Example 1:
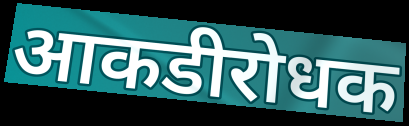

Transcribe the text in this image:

आकडीरोधक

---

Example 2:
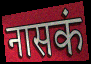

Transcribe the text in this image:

नासकं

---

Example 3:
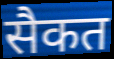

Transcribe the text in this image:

सैकत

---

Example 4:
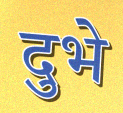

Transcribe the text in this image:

दुभे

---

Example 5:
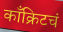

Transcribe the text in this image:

काँक्रिटचं